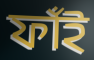
ফাঁই